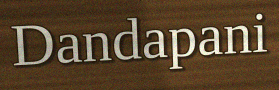
Dandapani